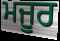
ਮਜੂਰ